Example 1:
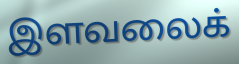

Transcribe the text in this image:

இளவலைக்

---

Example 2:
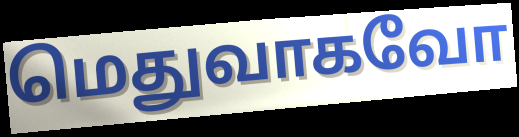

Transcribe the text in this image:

மெதுவாகவோ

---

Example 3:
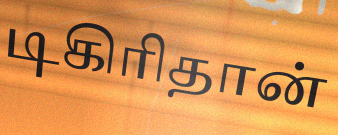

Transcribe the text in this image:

டிகிரிதான்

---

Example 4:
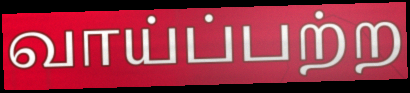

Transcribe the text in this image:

வாய்ப்பற்ற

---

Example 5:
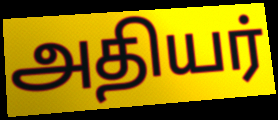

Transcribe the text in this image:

அதியர்